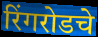
रिंगरोडचे